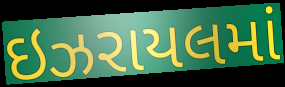
ઇઝરાયલમાં